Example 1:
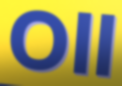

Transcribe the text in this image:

Oll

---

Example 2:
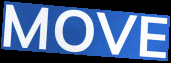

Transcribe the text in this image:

MOVE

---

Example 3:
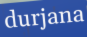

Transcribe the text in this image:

durjana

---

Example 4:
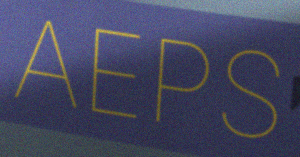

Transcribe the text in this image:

AEPS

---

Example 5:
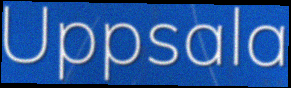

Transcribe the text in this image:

Uppsala